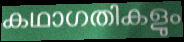
കഥാഗതികളും